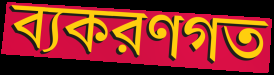
ব্যকরণগত